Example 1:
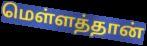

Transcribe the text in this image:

மெள்ளத்தான்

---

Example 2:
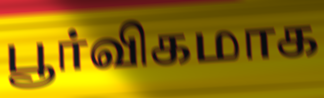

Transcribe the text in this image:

பூர்விகமாக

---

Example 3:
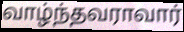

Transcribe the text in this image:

வாழ்ந்தவராவார்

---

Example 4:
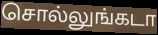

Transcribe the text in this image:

சொல்லுங்கடா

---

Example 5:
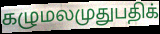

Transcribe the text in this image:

கழுமலமுதுபதிக்